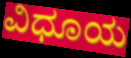
ವಿಧೂಯ